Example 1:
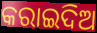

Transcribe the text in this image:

କରାଇଦିଅ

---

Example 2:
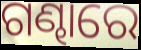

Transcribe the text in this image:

ଗଣ୍ଢାରେ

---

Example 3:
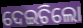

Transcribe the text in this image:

ଦେଇଚିଲୋ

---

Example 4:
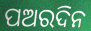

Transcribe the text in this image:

ପଅରଦିନ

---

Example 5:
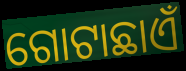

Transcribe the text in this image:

ଗୋଟାଛାଏଁ